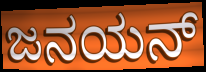
ಜನಯನ್